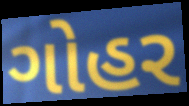
ગોહર